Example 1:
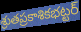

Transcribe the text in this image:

శ్రుతప్రకాశికభట్టర్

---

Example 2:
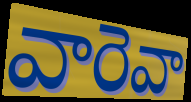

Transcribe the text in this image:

వారెవా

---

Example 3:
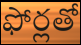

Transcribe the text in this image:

ఫోర్లతో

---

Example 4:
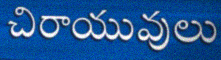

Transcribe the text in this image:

చిరాయువులు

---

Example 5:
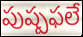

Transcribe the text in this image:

పుష్పఫలే